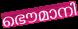
ഭൌമാനി